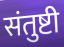
संतुष्टी